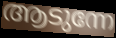
ആടുന്നേ